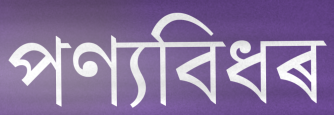
পণ্যবিধৰ